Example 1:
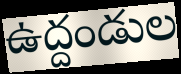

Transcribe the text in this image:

ఉద్దండుల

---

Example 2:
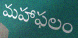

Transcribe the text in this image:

మహాఫలం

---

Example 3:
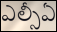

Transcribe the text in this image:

ఎల్సీఏ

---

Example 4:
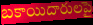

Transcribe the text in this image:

బకాయిదారులపై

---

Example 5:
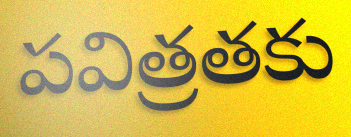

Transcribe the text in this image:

పవిత్రతకు